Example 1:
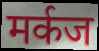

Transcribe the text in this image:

मर्कज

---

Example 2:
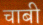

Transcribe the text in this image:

चाबी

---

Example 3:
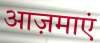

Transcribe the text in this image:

आज़माएं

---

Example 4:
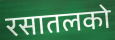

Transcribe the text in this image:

रसातलको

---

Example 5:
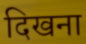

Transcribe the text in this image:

दिखना